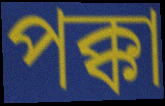
পক্কা